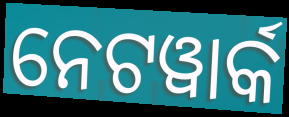
ନେଟୱାର୍କ